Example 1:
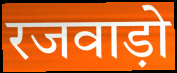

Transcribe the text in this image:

रजवाड़ो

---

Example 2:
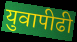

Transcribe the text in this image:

युवापीढी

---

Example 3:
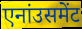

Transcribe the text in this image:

एनांउसमेंट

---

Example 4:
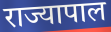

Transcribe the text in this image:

राज्यापाल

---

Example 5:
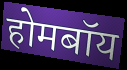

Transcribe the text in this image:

होमबॉय